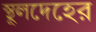
স্থূলদেহের